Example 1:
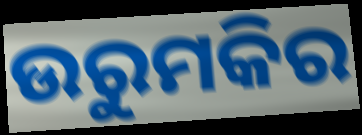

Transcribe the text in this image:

ଉରୁମକିର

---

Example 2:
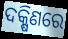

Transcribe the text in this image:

ଦକ୍ଷିଣରେ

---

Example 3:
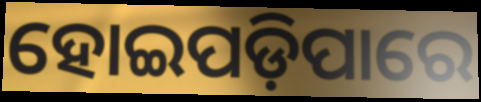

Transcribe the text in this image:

ହୋଇପଡ଼ିପାରେ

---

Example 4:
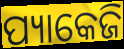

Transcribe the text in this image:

ପ୍ୟାକେଜି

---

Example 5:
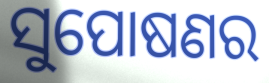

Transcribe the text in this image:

ସୁପୋଷଣର